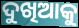
ଦୁଖିଆକୁ